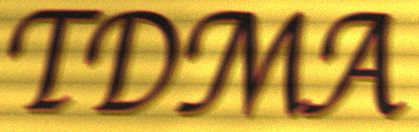
TDMA